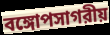
বঙ্গোপসাগরীয়